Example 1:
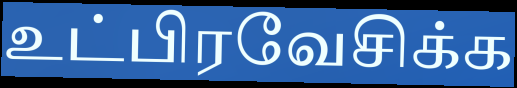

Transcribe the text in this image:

உட்பிரவேசிக்க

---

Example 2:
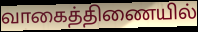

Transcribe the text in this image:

வாகைத்திணையில்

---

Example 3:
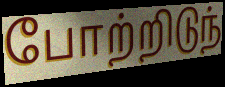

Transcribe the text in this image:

போற்றிடுந்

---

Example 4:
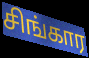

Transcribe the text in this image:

சிங்கார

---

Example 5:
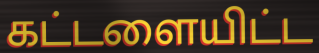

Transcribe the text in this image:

கட்டளையிட்ட